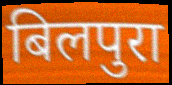
बिलपुरा